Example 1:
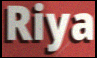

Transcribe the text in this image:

Riya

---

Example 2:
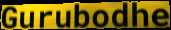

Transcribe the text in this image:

Gurubodhe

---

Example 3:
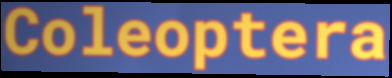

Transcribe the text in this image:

Coleoptera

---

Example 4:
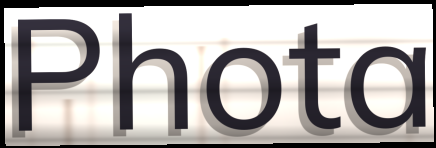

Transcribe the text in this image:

Phota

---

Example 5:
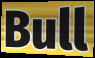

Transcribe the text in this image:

Bull